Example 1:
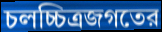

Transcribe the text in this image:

চলচ্চিত্রজগতের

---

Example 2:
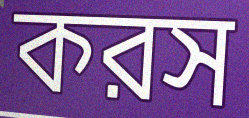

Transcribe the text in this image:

করস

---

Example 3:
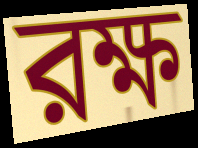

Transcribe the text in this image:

রক্ষ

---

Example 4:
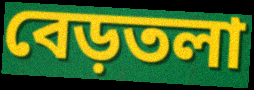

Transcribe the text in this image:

বেড়তলা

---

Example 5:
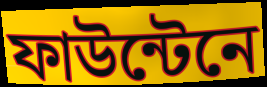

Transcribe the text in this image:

ফাউন্টেনে